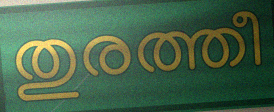
തുരത്തീ